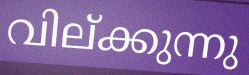
വില്ക്കുന്നു